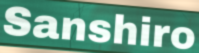
Sanshiro